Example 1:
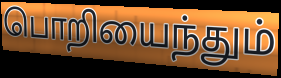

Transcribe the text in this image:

பொறியைந்தும்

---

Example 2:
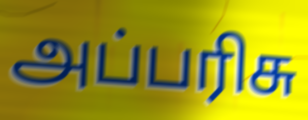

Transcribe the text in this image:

அப்பரிசு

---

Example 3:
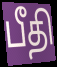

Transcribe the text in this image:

பீதி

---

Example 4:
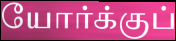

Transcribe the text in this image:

யோர்க்குப்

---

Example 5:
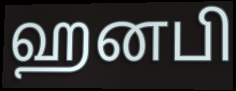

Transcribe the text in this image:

ஹனபி